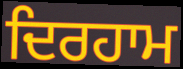
ਦਿਰਹਾਮ